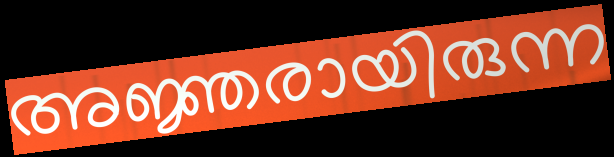
അജ്ഞരായിരുന്ന